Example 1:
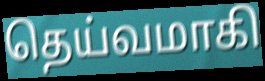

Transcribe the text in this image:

தெய்வமாகி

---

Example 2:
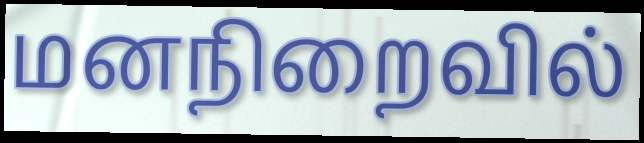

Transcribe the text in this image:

மனநிறைவில்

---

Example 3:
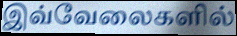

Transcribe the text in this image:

இவ்வேலைகளில்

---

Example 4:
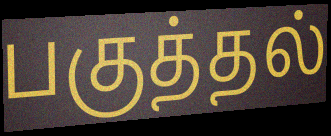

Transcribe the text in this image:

பகுத்தல்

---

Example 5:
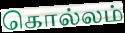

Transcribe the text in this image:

கொல்லம்